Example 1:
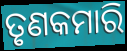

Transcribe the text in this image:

ତୃଣକମାରି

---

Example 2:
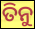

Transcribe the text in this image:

ତିନୁ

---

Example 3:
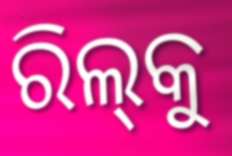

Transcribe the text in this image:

ରିଲ୍‌କୁ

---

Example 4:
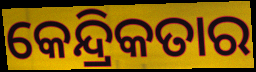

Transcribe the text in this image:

କେନ୍ଦ୍ରିକତାର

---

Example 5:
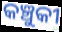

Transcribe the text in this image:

କଞ୍ଚୁକୀ